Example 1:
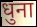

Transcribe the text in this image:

धुना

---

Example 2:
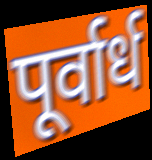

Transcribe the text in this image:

पूर्वार्ध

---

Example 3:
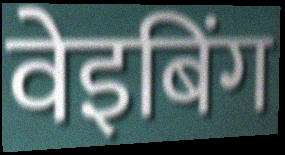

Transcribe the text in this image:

वेइबिंग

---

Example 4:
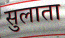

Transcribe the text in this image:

सुलाता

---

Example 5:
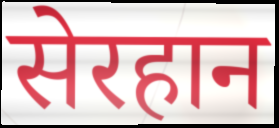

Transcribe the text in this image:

सेरहान